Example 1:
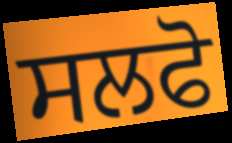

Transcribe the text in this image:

ਸਲਫੋ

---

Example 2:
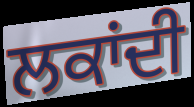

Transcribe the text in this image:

ਲਕਾਂਦੀ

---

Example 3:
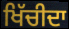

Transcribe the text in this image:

ਖਿੱਚੀਦਾ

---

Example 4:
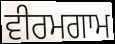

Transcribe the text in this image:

ਵੀਰਮਗਾਮ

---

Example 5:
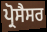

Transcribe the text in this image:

ਪ੍ਰੋਸੈਸਰ